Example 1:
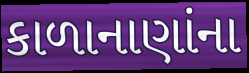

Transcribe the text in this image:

કાળાનાણાંના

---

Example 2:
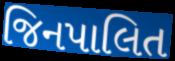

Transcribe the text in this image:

જિનપાલિત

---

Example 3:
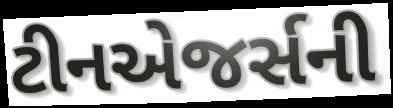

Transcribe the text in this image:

ટીનએજર્સની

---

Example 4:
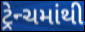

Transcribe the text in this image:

ટ્રેન્ચમાંથી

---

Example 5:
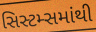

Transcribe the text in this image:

સિસ્ટમ્સમાંથી